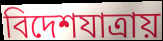
বিদেশযাত্রায়